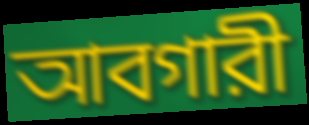
আবগারী